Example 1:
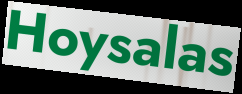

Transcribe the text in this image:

Hoysalas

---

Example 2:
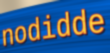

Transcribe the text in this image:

nodidde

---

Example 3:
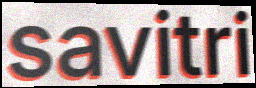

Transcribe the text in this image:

savitri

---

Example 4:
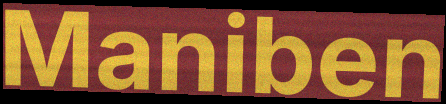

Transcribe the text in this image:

Maniben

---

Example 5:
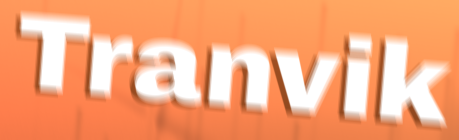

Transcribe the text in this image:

Tranvik